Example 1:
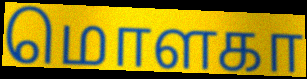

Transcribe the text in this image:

மொளகா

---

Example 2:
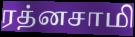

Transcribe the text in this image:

ரத்னசாமி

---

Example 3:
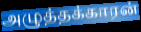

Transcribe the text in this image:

அழுத்தக்காரன்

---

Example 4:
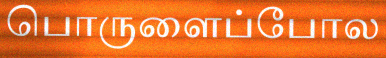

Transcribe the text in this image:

பொருளைப்போல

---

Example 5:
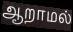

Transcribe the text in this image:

ஆறாமல்